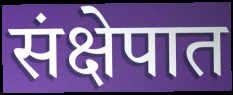
संक्षेपात